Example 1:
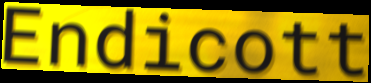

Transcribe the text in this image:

Endicott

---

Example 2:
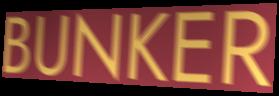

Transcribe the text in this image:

BUNKER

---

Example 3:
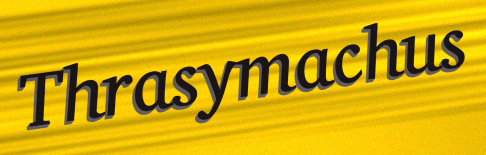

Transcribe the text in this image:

Thrasymachus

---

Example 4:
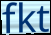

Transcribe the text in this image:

fkt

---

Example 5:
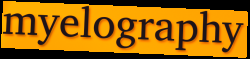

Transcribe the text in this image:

myelography